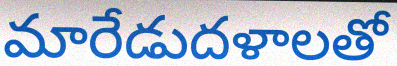
మారేడుదళాలతో